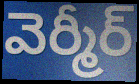
వెర్మీర్